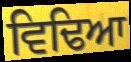
ਵਿਢਿਆ